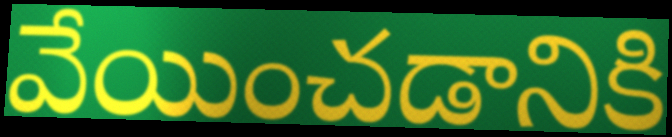
వేయించడానికి